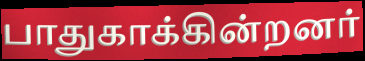
பாதுகாக்கின்றனர்